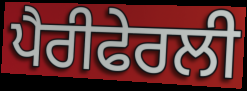
ਪੈਰੀਫੇਰਲੀ